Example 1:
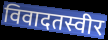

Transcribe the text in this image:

विवादतस्वीर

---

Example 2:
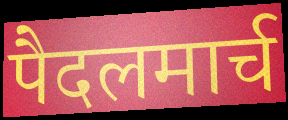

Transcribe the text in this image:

पैदलमार्च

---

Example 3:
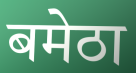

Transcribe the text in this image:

बमेठा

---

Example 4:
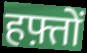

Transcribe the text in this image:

हफ़्तों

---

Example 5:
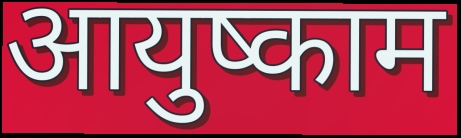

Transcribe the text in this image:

आयुष्काम